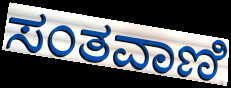
ಸಂತವಾಣಿ